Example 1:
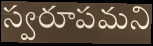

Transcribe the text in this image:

స్వరూపమని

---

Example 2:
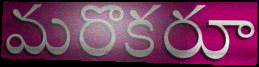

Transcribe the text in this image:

మరొకరూ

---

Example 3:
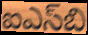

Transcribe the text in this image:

ఐఎస్‌బి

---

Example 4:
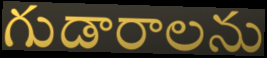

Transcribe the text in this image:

గుడారాలను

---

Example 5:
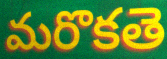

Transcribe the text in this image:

మరొకతె